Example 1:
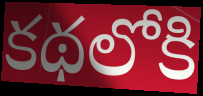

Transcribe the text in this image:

కథలోకి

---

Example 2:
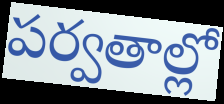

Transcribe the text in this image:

పర్వతాల్లో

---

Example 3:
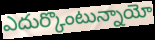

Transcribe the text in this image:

ఎదుర్కొంటున్నాయో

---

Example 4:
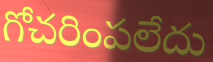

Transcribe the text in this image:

గోచరింపలేదు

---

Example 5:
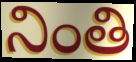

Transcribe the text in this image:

నింతి